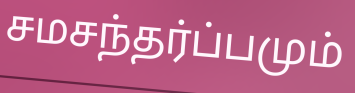
சமசந்தர்ப்பமும்